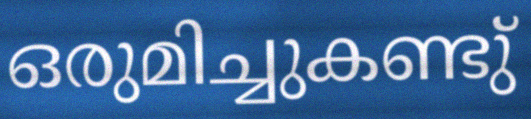
ഒരുമിച്ചുകണ്ടു്